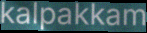
kalpakkam